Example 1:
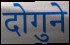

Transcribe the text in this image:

दोगुने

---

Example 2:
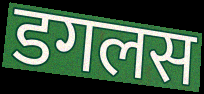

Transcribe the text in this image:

डगलस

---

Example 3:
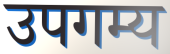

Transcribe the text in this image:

उपगम्य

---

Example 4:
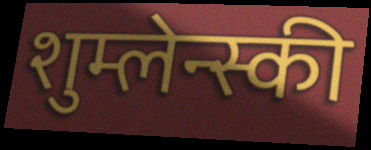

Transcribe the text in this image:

शुम्लेन्स्की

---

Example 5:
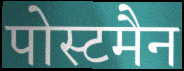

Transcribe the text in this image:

पोस्टमैन